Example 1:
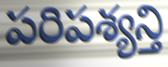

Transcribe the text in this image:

పరిపశ్యన్తి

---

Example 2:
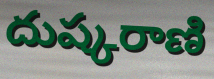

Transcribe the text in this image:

దుష్కరాణి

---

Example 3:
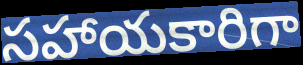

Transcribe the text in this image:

సహాయకారిగా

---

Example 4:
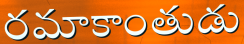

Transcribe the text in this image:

రమాకాంతుడు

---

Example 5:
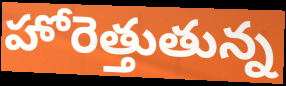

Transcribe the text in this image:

హోరెత్తుతున్న